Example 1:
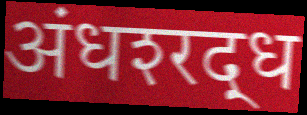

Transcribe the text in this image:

अंधश्रद्ध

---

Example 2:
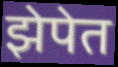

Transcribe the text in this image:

झेपेत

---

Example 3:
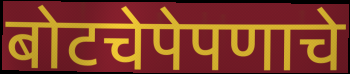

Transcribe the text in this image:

बोटचेपेपणाचे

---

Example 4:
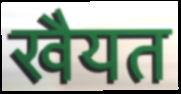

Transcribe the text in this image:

खैयत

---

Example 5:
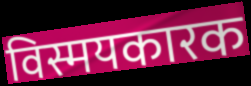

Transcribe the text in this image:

विस्मयकारक